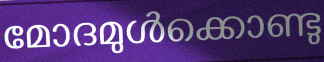
മോദമുൾക്കൊണ്ടു